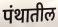
पंथातील